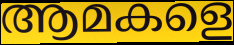
ആമകളെ